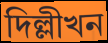
দিল্লীখন